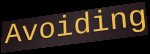
Avoiding